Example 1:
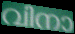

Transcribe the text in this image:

വിനാ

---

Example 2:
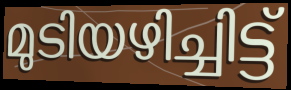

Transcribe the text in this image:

മുടിയഴിച്ചിട്ട്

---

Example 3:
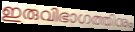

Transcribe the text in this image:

ഇരുവിഭാഗത്തിനും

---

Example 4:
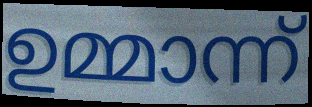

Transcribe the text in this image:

ഉമ്മാന്ന്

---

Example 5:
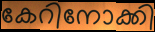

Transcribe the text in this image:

കേറിനോക്കി